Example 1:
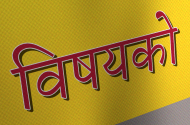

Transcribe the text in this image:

विषयको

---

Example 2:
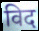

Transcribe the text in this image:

विद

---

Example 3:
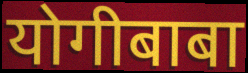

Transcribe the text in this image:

योगीबाबा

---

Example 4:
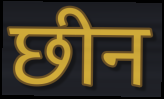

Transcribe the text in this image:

छीन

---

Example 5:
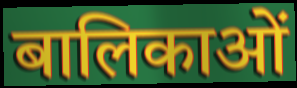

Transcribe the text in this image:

बालिकाओं